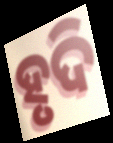
ହୃଦି